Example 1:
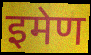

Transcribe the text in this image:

इमेण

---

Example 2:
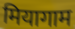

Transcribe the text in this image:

मियागाम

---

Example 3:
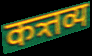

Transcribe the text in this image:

कत्र्तव्य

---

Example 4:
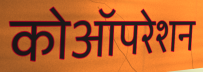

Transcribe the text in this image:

कोऑपरेशन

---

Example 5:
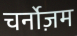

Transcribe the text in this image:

चर्नोज़म